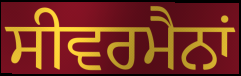
ਸੀਵਰਮੈਨਾਂ